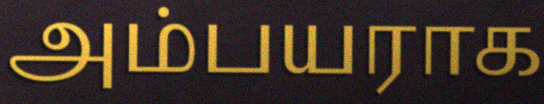
அம்பயராக